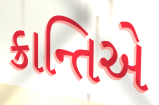
ક્રાન્તિએ